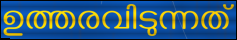
ഉത്തരവിടുന്നത്